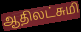
ஆதிலட்சுமி